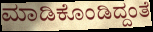
ಮಾಡಿಕೊಂಡಿದ್ದಂತೆ